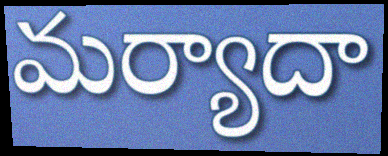
మర్యాదా